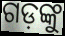
ଗଡ଼ଙ୍କୁ